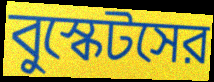
বুস্কেটসের